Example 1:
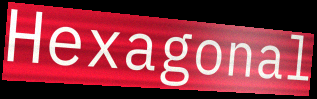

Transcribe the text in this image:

Hexagonal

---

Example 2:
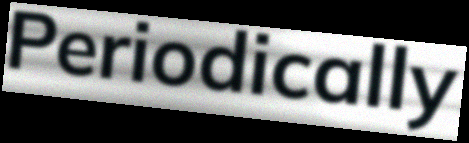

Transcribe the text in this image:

Periodically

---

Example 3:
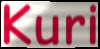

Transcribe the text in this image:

Kuri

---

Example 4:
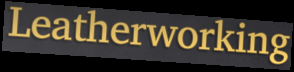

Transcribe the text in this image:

Leatherworking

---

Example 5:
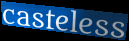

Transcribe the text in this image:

casteless